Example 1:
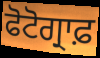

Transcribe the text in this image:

ਫੋਟੋਗ੍ਰਾਫ਼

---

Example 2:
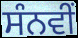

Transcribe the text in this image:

ਸੰਨਵੀਂ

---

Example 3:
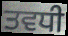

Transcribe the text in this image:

ਤਵਧੀ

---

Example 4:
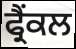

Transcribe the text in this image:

ਫ੍ਰੈਂਕਲ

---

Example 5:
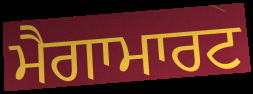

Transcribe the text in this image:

ਮੈਗਾਮਾਰਟ